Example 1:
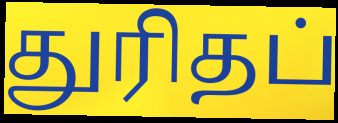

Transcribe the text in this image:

துரிதப்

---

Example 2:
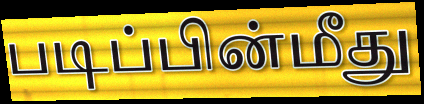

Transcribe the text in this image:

படிப்பின்மீது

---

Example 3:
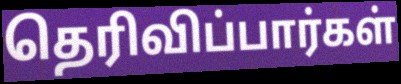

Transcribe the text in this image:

தெரிவிப்பார்கள்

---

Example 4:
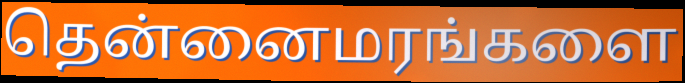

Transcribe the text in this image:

தென்னைமரங்களை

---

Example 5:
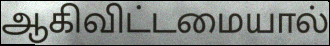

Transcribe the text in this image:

ஆகிவிட்டமையால்